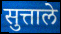
सुत्ताले